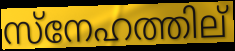
സ്നേഹത്തില്